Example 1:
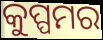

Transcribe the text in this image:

କୁପ୍ପମର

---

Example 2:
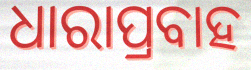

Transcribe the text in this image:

ଧାରାପ୍ରବାହ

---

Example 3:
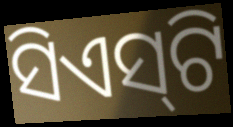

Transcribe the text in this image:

ସିଏସ୍‌ଟି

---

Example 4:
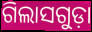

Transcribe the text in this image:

ଗିଲାସଗୁଡ଼ା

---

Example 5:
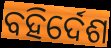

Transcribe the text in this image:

ବହିର୍ଦେଶ